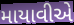
માયાવીએ